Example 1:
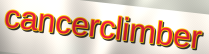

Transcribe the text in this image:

cancerclimber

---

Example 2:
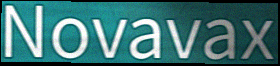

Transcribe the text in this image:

Novavax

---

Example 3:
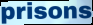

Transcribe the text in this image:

prisons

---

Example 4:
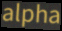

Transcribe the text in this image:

alpha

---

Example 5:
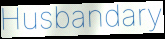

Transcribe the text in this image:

Husbandary